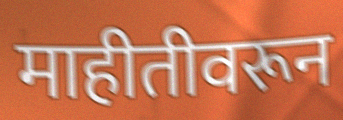
माहीतीवरून